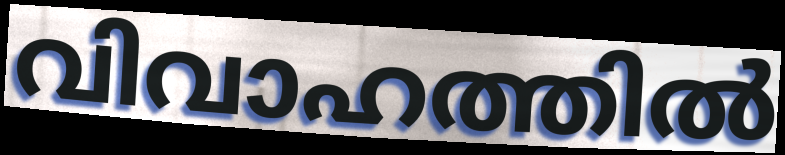
വിവാഹത്തിൽ